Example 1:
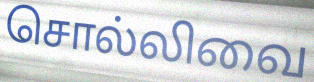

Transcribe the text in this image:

சொல்லிவை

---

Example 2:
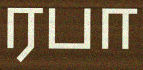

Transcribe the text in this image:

ரபா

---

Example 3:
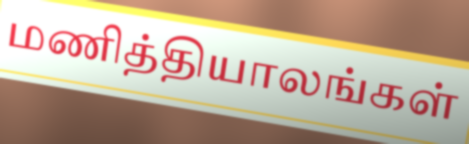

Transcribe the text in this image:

மணித்தியாலங்கள்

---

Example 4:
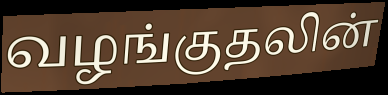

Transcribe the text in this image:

வழங்குதலின்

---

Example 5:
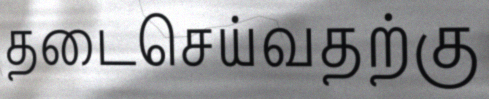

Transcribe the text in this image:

தடைசெய்வதற்கு